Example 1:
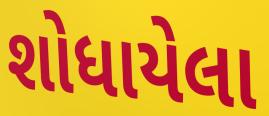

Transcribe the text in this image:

શોધાયેલા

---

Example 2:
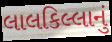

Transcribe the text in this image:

લાલકિલ્લાનું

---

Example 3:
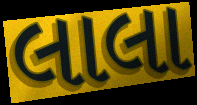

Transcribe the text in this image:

લાલા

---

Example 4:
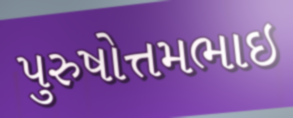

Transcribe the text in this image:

પુરુષોત્તમભાઇ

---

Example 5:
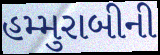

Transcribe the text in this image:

હમ્મુરાબીની